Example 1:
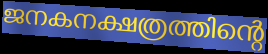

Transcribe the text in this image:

ജനകനക്ഷത്രത്തിന്റെ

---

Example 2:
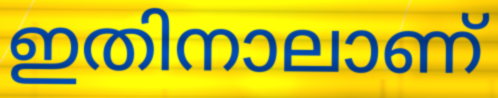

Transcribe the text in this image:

ഇതിനാലാണ്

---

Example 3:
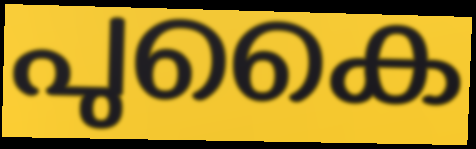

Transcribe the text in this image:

പുകൈ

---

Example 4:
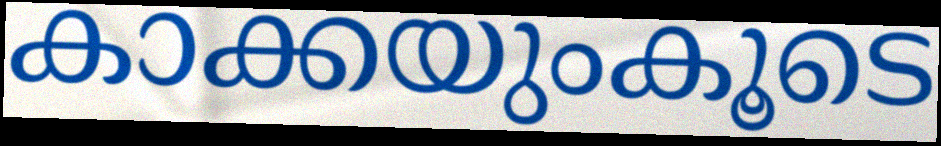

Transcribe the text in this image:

കാക്കയുംകൂടെ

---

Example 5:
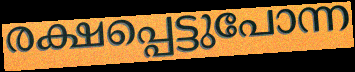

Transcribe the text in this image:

രക്ഷപ്പെട്ടുപോന്ന